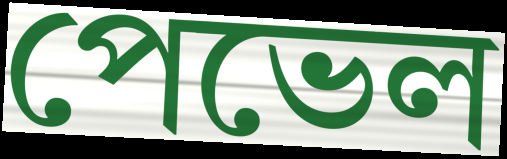
পেভেল